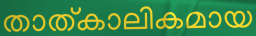
താത്കാലികമായ